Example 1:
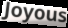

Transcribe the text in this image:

Joyous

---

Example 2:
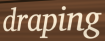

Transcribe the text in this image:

draping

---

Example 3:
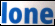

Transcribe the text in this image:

lone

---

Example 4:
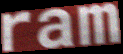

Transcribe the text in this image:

ram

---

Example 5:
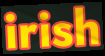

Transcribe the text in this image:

irish